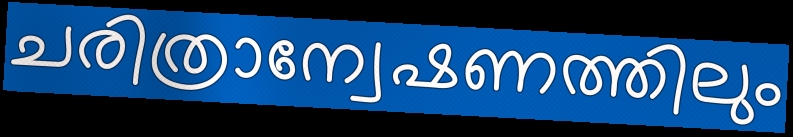
ചരിത്രാന്വേഷണത്തിലും